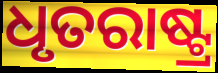
ଧୃତରାଷ୍ଟ୍ର